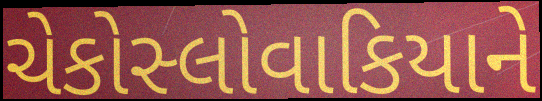
ચેકોસ્લોવાકિયાને